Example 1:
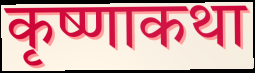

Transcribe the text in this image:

कृष्णाकथा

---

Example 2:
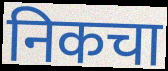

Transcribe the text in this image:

निकचा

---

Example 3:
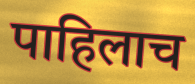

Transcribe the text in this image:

पाहिलाच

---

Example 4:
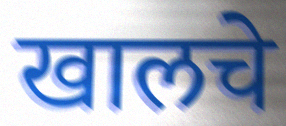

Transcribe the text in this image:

खालचे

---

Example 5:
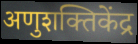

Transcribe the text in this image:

अणुशक्तिकेंद्र